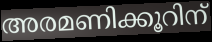
അരമണിക്കൂറിന്